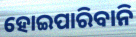
ହୋଇପାରିବାନି